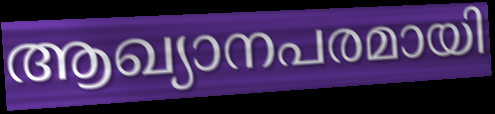
ആഖ്യാനപരമായി